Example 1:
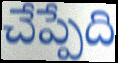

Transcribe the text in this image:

చేప్పేది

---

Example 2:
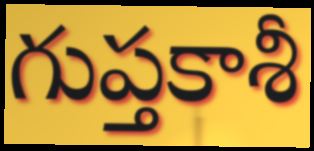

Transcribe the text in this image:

గుప్తకాశీ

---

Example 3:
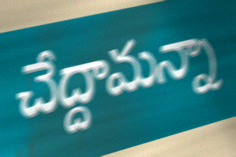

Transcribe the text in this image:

చేద్దామన్నా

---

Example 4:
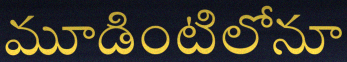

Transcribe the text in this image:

మూడింటిలోనూ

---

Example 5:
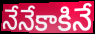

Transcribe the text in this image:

నేనేకాకినే